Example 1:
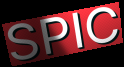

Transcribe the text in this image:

SPIC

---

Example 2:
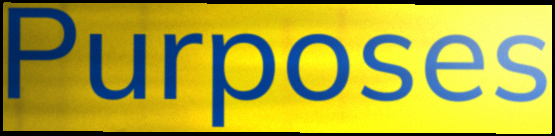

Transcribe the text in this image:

Purposes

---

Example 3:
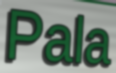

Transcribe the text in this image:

Pala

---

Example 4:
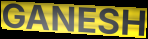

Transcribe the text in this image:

GANESH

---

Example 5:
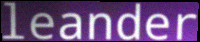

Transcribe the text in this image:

leander